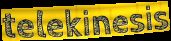
telekinesis